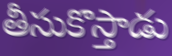
తీసుకొస్తాడు